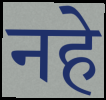
नहे